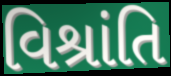
વિશ્રાંતિ